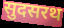
सुदसरथ